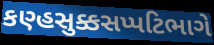
કણ્હસુક્કસપ્પટિભાગે